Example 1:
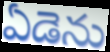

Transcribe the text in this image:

ఏడెను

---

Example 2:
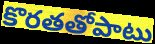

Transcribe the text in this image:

కొరతతోపాటు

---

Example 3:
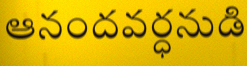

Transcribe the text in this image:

ఆనందవర్ధనుడి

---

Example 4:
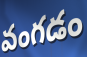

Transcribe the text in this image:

వంగడం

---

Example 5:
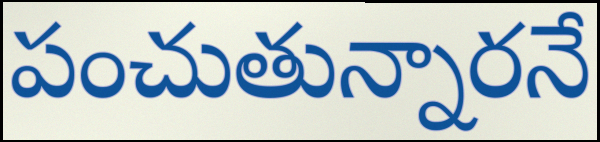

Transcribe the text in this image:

పంచుతున్నారనే